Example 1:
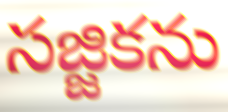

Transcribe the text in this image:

సజ్జికను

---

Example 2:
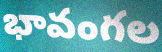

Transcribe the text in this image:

భావంగల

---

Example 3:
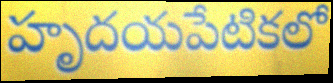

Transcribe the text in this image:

హృదయపేటికలో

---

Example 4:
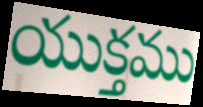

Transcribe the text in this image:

యుక్తము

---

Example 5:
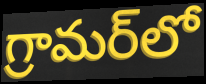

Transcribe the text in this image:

గ్రామర్‌లో